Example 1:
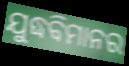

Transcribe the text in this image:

ଯୁଦ୍ଧବିମାନର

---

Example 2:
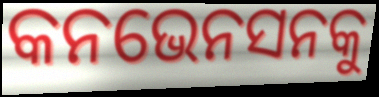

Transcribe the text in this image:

କନଭେନସନକୁ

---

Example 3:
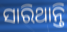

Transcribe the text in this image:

ସାରିଥାନ୍ତି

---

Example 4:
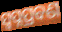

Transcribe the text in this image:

ସ୍ଵପ୍ନପ୍ରବଣ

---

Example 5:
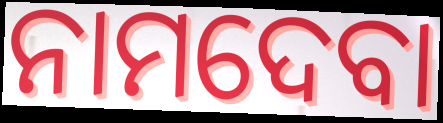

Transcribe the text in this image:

ନାମଦେବା